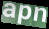
apn